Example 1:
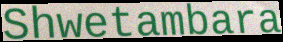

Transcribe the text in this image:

Shwetambara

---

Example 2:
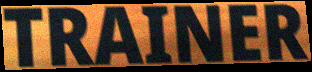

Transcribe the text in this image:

TRAINER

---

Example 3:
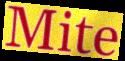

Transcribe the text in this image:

Mite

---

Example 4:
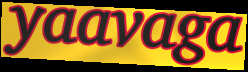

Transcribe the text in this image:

yaavaga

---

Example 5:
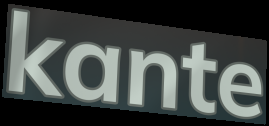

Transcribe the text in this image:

kante